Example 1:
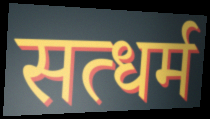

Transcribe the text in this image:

सत्धर्म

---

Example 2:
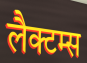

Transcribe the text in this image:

लैक्टम्स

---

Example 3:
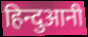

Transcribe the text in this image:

हिन्दुआनी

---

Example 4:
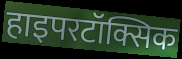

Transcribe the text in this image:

हाइपरटॉक्सिक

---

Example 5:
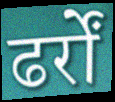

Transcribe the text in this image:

ढर्रों